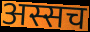
अस्सच